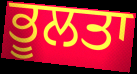
ਭੂਲਤਾ